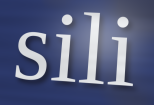
sili